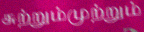
சுற்றும்முற்றும்